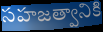
సహజత్వానికి